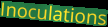
Inoculations